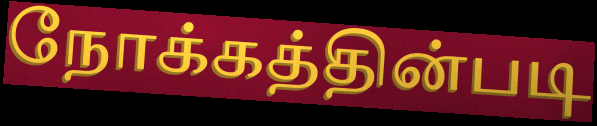
நோக்கத்தின்படி